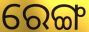
ରେଙ୍ଗ